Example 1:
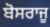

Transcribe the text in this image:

ਬੋਸਰਾਜੂ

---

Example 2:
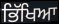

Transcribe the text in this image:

ਭਿੱਖਿਆ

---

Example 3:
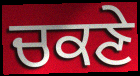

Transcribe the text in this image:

ਚਕਣੇ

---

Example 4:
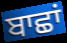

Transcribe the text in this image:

ਬਾਛਾਂ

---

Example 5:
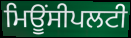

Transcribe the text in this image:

ਮਿਊਂਸੀਪਲਟੀ